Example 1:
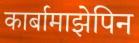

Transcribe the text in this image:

कार्बामाझेपिन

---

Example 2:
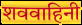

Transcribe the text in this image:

शववाहिनी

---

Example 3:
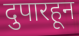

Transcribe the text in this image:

दुपारहून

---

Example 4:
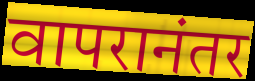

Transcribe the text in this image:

वापरानंतर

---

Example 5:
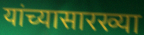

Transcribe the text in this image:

यांच्यासारख्या